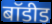
बॉडीड